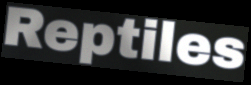
Reptiles